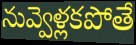
నువ్వెళ్లకపోతే